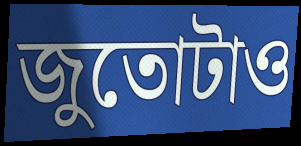
জুতোটাও